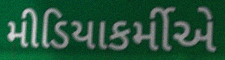
મીડિયાકર્મીએ